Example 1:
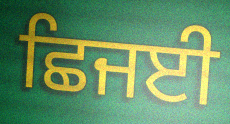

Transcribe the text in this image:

ਛਿਜਈ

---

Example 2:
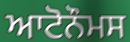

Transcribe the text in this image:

ਆਟੋਨੌਮਸ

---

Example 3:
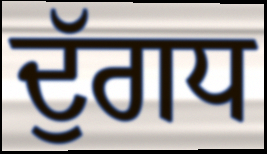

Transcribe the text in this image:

ਦੁੱਗਧ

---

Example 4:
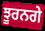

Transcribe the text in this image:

ਝੂਰਨਗੇ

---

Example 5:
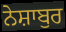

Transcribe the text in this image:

ਨੇਸ਼ਾਬੁਰ